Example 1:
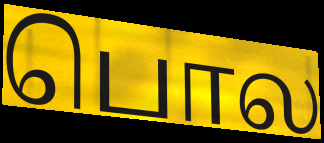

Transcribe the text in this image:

பொல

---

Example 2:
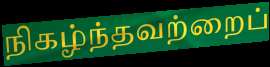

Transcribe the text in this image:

நிகழ்ந்தவற்றைப்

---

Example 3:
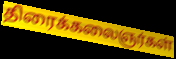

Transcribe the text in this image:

திரைக்கலைஞர்கள்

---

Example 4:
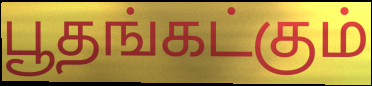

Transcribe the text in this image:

பூதங்கட்கும்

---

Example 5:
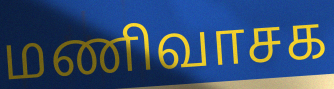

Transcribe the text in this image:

மணிவாசக